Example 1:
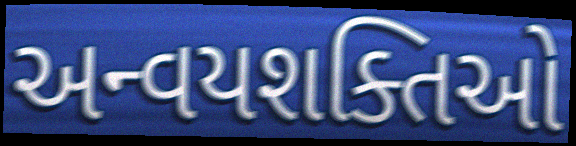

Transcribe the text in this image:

અન્વયશક્તિઓ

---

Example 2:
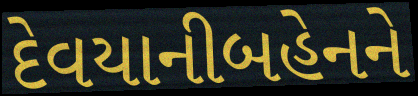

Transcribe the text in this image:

દેવયાનીબહેનને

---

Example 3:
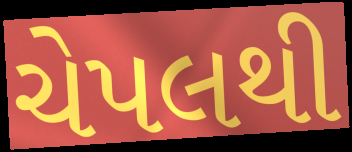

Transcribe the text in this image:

ચેપલથી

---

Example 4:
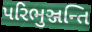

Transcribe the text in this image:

પરિભુઞ્જન્તિ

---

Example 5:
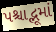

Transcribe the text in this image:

પશ્ચાદ્ભૂમાં